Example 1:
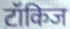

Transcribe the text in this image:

टॉकिज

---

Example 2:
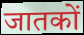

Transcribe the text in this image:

जातकों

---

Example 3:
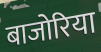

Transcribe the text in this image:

बाजोरिया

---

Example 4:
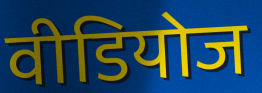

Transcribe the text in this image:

वीडियोज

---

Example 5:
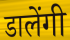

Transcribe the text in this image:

डालेंगी